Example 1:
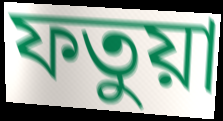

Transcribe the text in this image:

ফতুয়া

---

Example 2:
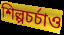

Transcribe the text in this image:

শিল্পচর্চাও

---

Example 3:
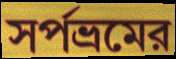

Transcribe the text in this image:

সর্পভ্রমের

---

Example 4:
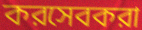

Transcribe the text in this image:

করসেবকরা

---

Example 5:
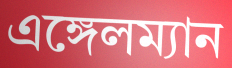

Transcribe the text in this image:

এঙ্গেলম্যান